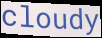
cloudy